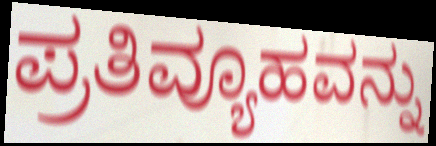
ಪ್ರತಿವ್ಯೂಹವನ್ನು